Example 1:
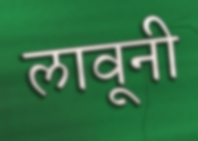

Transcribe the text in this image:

लावूनी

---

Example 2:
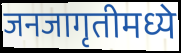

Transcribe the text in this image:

जनजागृतीमध्ये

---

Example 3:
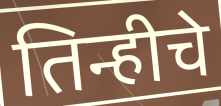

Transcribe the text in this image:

तिन्हीचे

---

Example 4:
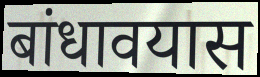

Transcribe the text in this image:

बांधावयास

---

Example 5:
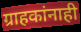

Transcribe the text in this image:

ग्राहकांनाही